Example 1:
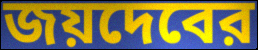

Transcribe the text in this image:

জয়দেবের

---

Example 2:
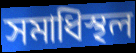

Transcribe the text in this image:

সমাধিস্থল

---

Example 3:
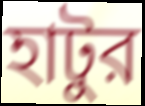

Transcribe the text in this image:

হাটুর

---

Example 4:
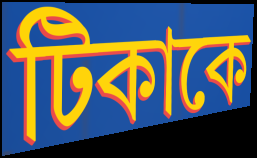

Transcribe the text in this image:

টিকাকে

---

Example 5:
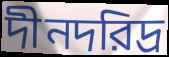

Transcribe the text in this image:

দীনদরিদ্র